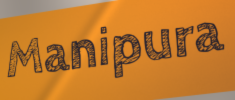
Manipura